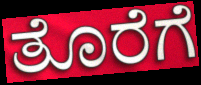
ತೊರೆಗೆ